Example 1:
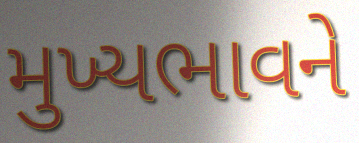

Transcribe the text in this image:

મુખ્યભાવને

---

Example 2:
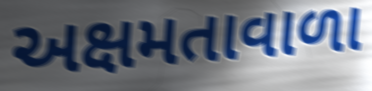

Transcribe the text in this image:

અક્ષમતાવાળા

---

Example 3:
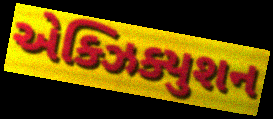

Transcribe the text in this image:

એક્ઝિક્યુશન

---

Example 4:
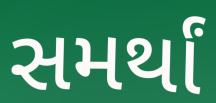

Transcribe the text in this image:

સમર્થાં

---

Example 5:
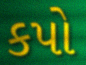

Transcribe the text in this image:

કપો